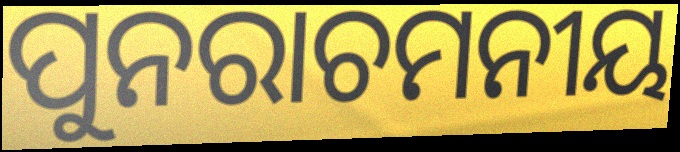
ପୁନରାଚମନୀୟ